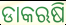
ଡାକଋଷି